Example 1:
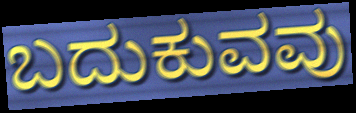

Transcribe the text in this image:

ಬದುಕುವವು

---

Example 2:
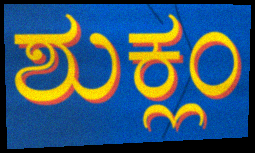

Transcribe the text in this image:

ಶುಕ್ಲಂ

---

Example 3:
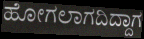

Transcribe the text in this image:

ಹೋಗಲಾಗದಿದ್ದಾಗ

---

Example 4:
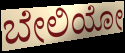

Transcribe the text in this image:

ಬೇಲಿಯೋ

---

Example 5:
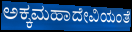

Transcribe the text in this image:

ಅಕ್ಕಮಹಾದೇವಿಯಂತೆ